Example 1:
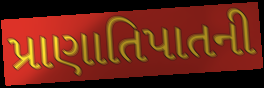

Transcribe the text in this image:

પ્રાણાતિપાતની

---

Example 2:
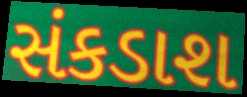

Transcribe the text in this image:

સંકડાશ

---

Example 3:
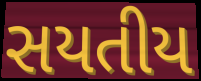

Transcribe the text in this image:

સયતીય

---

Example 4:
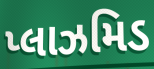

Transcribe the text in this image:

પ્લાઝમિડ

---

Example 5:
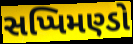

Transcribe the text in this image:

સપ્પિમણ્ડો